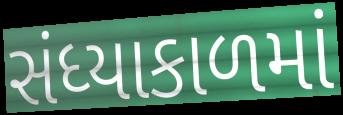
સંધ્યાકાળમાં